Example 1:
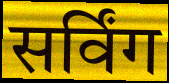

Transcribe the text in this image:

सर्विंग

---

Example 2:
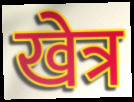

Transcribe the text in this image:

खेत्र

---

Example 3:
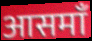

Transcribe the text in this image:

आसमाँ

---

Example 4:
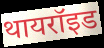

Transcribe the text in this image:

थायरॉइड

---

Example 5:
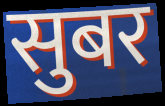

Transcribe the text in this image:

सुबर